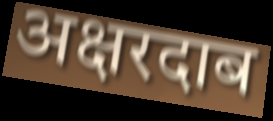
अक्षरदाब